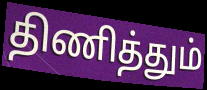
திணித்தும்